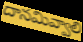
దానమివ్వాలి